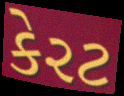
કેરટ